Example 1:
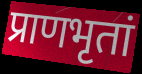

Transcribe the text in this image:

प्राणभृतां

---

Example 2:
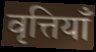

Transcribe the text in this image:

वृत्तियाँ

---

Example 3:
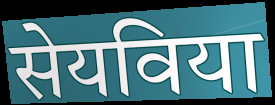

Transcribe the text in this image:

सेयविया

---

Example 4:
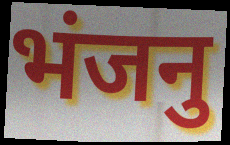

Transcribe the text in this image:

भंजनु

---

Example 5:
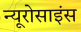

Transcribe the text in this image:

न्यूरोसाइंस